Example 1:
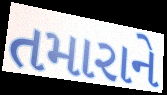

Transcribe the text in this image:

તમારાને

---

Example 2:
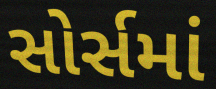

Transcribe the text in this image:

સોર્સમાં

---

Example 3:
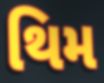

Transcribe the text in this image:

થિમ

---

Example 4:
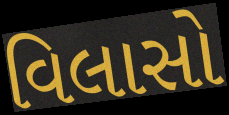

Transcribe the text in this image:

વિલાસો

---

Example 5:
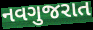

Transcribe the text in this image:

નવગુજરાત